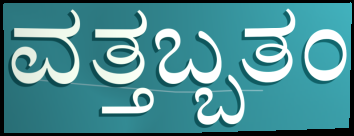
ವತ್ತಬ್ಬತಂ